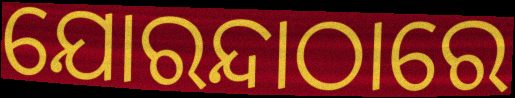
ଯୋରନ୍ଦାଠାରେ